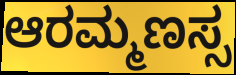
ಆರಮ್ಮಣಸ್ಸ